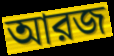
আরজ